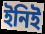
ইনিই